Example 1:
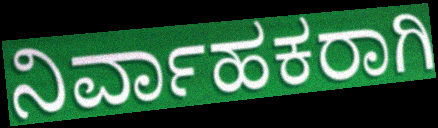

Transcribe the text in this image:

ನಿರ್ವಾಹಕರಾಗಿ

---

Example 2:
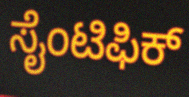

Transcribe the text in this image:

ಸೈಂಟಿಫಿಕ್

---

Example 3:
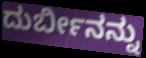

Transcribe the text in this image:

ದುರ್ಬೀನನ್ನು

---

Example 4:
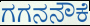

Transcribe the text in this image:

ಗಗನನೌಕೆ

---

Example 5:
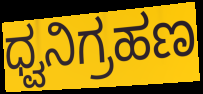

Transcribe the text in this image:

ಧ್ವನಿಗ್ರಹಣ